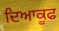
ਦਿਆਕੂਫ